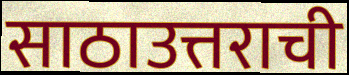
साठाउत्तराची